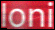
loni